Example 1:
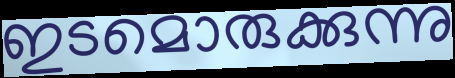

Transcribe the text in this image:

ഇടമൊരുക്കുന്നു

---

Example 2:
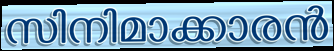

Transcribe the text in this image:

സിനിമാക്കാരൻ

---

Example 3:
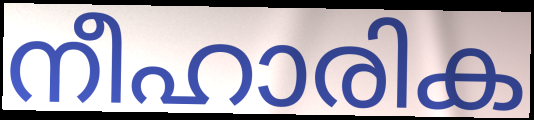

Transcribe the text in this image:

നീഹാരിക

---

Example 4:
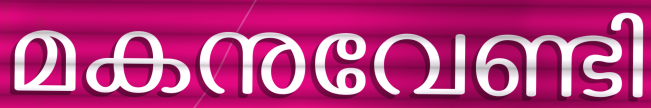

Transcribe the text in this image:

മകനുവേണ്ടി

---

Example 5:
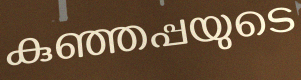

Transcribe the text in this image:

കുഞ്ഞപ്പയുടെ